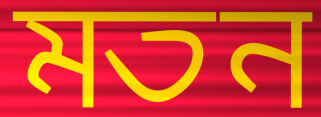
মতন